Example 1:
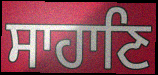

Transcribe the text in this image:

ਸਾਹਾਣਿ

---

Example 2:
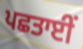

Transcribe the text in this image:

ਪਛਤਾਈਂ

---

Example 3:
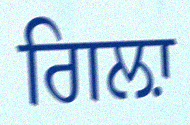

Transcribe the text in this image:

ਗਿਲ਼ਾ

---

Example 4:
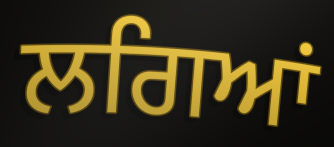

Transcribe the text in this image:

ਲਗਿਆਂ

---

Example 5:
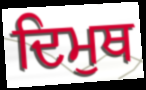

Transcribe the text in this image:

ਦਿਮੁਥ